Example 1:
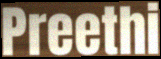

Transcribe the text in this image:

Preethi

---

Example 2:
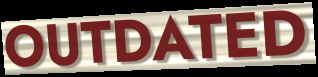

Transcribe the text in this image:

OUTDATED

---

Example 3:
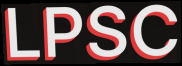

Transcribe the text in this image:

LPSC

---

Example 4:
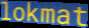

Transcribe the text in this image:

lokmat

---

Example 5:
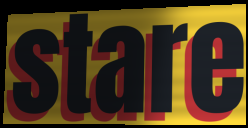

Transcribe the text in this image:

stare